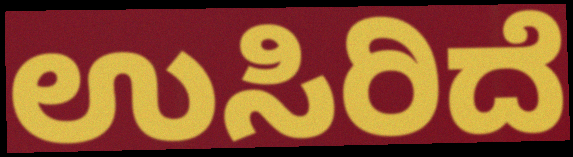
ಉಸಿರಿದೆ